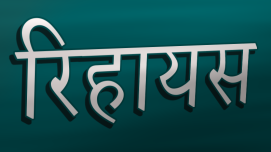
रिहायस